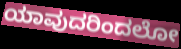
ಯಾವುದರಿಂದಲೋ